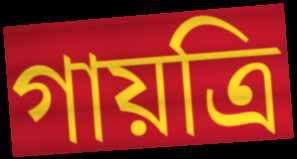
গায়ত্রি